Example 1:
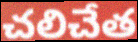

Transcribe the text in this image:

చలిచేత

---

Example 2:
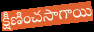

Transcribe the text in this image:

క్షీణించసాగాయి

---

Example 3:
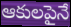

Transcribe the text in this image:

ఆకులపైనే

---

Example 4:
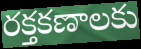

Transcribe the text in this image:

రక్తకణాలకు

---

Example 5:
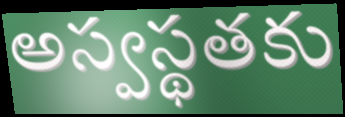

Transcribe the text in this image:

అస్వస్థతకు